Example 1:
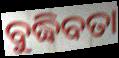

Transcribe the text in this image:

ବୁଦ୍ଧିବତା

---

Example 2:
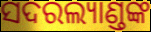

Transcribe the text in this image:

ସଦରଲ୍ୟାଣ୍ଡଙ୍କ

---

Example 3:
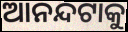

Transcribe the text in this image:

ଆନନ୍ଦଟାକୁ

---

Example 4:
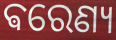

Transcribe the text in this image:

ଵରେଣ୍ୟ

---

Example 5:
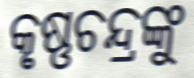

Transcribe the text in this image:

କୃଷ୍ଣଚନ୍ଦ୍ରଙ୍କୁ